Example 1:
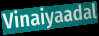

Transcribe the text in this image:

Vinaiyaadal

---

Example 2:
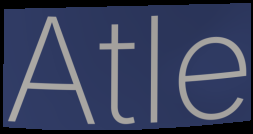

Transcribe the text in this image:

Atle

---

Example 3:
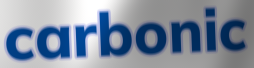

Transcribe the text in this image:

carbonic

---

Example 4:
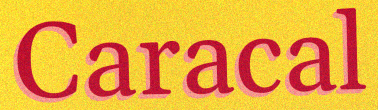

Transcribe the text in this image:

Caracal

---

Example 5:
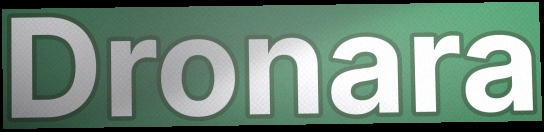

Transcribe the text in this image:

Dronara